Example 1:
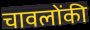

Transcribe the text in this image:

चावलोंकी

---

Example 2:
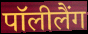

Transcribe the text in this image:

पॉलीलैंग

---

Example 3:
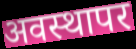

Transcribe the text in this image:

अवस्थापर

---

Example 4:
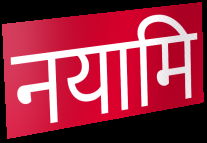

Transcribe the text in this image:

नयामि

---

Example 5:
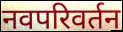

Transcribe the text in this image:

नवपरिवर्तन